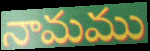
నామము